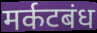
मर्कटबंध